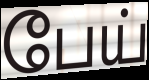
பேய்